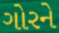
ગોરને